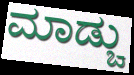
ಮಾಡ್ಚು